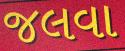
જલવા